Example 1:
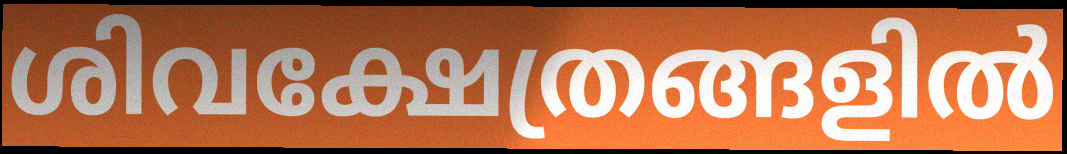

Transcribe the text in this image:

ശിവക്ഷേത്രങ്ങളിൽ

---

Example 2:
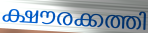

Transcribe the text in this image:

ക്ഷൗരക്കത്തി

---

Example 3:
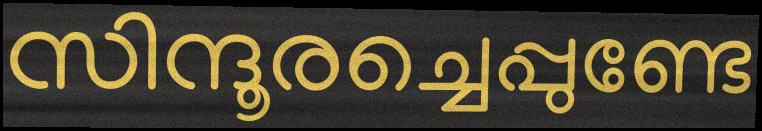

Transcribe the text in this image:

സിന്ദൂരച്ചെപ്പുണ്ടേ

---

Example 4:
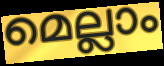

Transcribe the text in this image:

മെല്ലാം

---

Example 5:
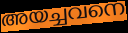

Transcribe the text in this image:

അയച്ചവനെ